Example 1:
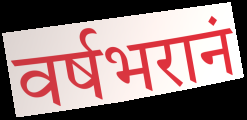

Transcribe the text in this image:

वर्षभरानं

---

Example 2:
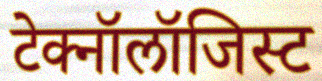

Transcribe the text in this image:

टेक्नॉलॉजिस्ट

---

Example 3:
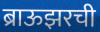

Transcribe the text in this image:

ब्राऊझरची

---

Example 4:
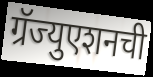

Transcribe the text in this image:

ग्रॅज्युएशनची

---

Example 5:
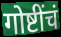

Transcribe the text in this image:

गोष्टींचं